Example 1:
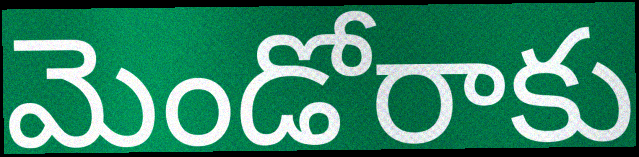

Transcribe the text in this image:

మెండోరాకు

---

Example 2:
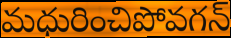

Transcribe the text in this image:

మధురించిపోవగన్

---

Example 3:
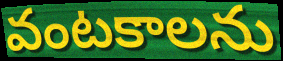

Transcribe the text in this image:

వంటకాలను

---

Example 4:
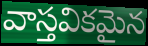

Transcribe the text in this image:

వాస్తవికమైన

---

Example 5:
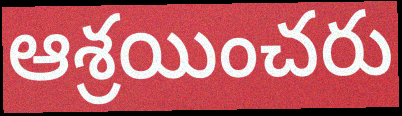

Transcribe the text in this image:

ఆశ్రయించరు